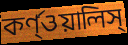
কর্ণ্ওয়ালিস্